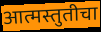
आत्मस्तुतीचा